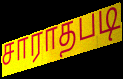
சாராதபடி